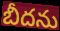
బీదను